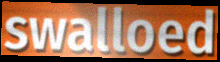
swalloed